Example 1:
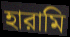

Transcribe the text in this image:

হারামি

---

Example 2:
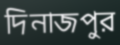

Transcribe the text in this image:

দিনাজপুর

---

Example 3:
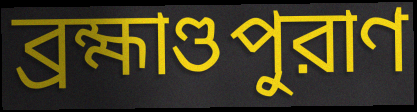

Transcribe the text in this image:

ব্রহ্মাণ্ডপুরাণ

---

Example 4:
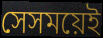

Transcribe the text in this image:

সেসময়েই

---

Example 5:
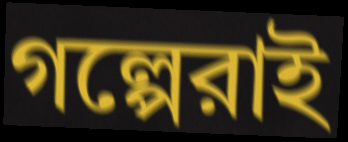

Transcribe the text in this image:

গল্পেরাই